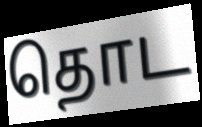
தொட